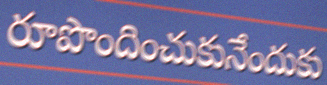
రూపొందించుకునేందుకు